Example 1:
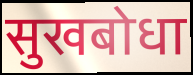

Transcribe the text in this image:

सुखबोधा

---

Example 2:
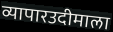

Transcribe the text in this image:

व्यापारउदीमाला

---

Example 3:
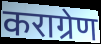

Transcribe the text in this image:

कराग्रेण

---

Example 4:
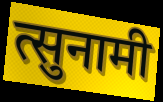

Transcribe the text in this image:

त्सुनामी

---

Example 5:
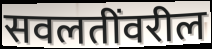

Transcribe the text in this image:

सवलतींवरील